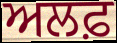
ਅਲਫ਼